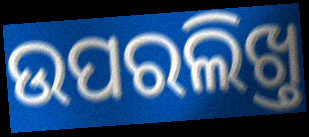
ଉପରଲିଖ୍ତ